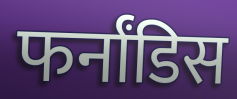
फर्नांडिस